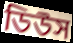
ডিউস